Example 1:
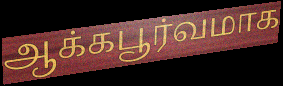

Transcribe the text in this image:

ஆக்கபூர்வமாக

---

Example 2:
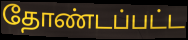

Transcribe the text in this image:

தோண்டப்பட்ட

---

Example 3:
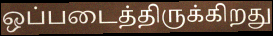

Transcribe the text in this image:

ஒப்படைத்திருக்கிறது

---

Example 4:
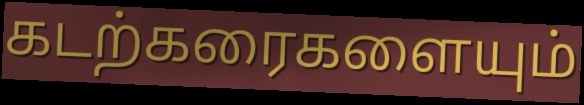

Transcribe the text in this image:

கடற்கரைகளையும்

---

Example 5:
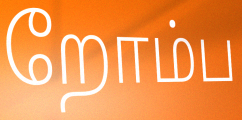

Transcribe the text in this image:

றோம்ப